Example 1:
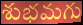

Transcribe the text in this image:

శుభమగు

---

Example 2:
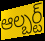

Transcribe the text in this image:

ఆల్బర్ట్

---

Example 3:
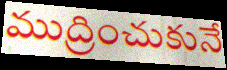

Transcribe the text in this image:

ముద్రించుకునే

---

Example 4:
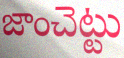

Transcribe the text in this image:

జాంచెట్టు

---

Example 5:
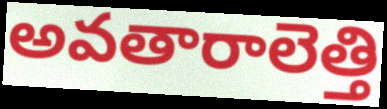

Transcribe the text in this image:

అవతారాలెత్తి